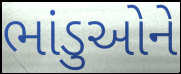
ભાંડુઓને